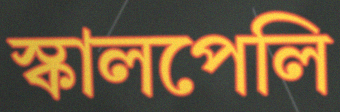
স্কালপেলি